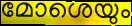
മോശെയും